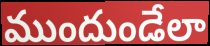
ముందుండేలా